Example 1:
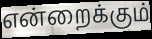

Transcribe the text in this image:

என்றைக்கும்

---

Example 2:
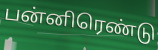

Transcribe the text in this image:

பன்னிரெண்டு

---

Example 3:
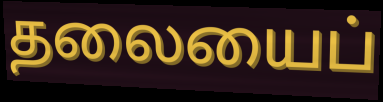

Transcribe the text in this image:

தலையைப்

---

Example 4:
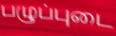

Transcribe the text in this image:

பழுப்புடை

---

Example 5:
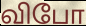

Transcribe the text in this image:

விபோ